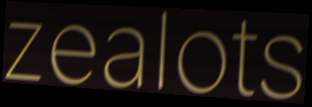
zealots